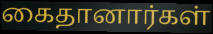
கைதானார்கள்